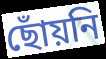
ছোঁয়নি